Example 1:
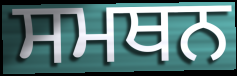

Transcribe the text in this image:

ਸਮਥਨ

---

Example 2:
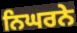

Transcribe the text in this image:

ਨਿਘਰਨੇ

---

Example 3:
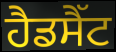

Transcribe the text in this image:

ਹੈਡਸੈੱਟ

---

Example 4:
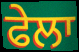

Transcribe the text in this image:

ਫੇਲਾ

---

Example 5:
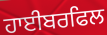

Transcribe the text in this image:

ਹਾਈਬਰਫਿਲ